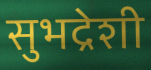
सुभद्रेशी